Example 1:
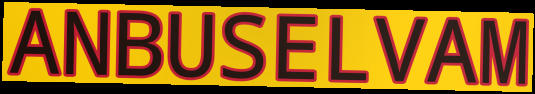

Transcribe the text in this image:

ANBUSELVAM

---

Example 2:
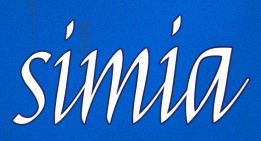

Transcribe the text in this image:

simia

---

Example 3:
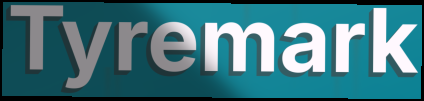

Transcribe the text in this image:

Tyremark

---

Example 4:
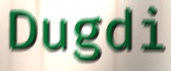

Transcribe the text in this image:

Dugdi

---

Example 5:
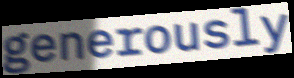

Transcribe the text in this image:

generously